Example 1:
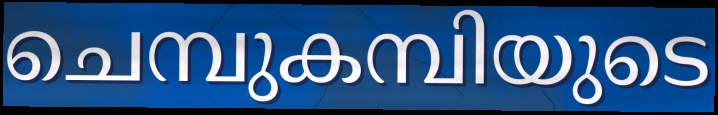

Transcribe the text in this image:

ചെമ്പുകമ്പിയുടെ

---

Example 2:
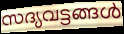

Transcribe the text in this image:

സദ്യവട്ടങ്ങൾ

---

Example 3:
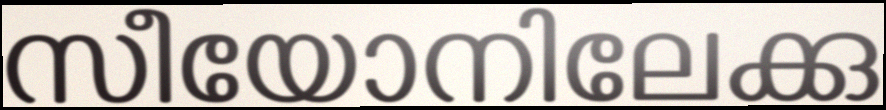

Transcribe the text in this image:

സീയോനിലേക്കു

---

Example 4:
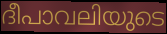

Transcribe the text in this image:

ദീപാവലിയുടെ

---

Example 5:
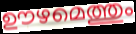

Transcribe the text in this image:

ഊഴമെത്തും